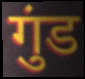
गुंड